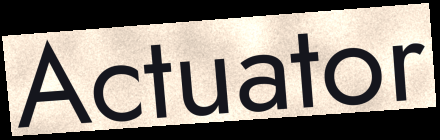
Actuator